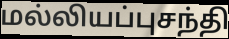
மல்லியப்புசந்தி